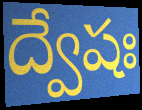
ద్వేషః